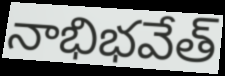
నాభిభవేత్